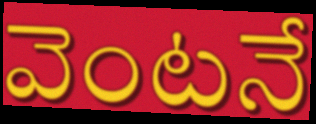
వెంటనే